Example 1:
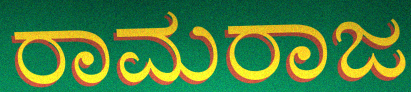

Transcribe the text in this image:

ರಾಮರಾಜ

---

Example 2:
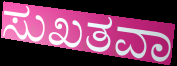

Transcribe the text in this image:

ಸುಖತವಾ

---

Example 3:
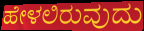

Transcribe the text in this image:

ಹೇಳಲಿರುವುದು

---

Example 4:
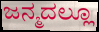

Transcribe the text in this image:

ಜನ್ಮದಲ್ಲೂ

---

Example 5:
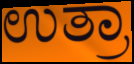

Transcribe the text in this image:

ಉತ್ರಾ